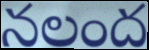
నలంద